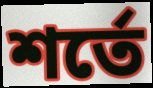
শর্তে